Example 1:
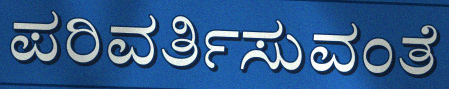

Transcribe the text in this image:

ಪರಿವರ್ತಿಸುವಂತೆ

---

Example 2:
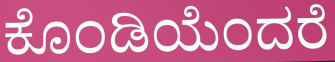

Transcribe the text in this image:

ಕೊಂಡಿಯೆಂದರೆ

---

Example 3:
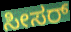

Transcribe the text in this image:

ಸೀಸರ್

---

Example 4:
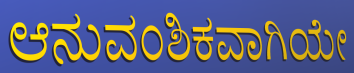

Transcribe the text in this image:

ಆನುವಂಶಿಕವಾಗಿಯೇ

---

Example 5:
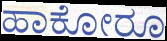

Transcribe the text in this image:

ಹಾಕೋರೂ